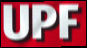
UPF